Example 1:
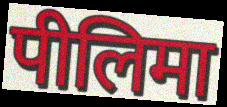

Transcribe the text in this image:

पीलिमा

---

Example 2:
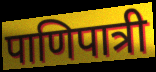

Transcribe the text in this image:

पाणिपात्री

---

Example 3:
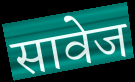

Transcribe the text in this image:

सावेज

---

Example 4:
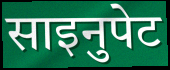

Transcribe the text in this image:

साइनुपेट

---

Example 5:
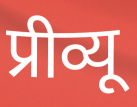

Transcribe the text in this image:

प्रीव्यू